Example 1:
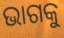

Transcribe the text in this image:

ଭାଗକୁ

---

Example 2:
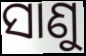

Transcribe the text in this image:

ସାଣୁ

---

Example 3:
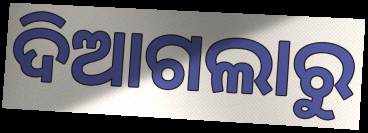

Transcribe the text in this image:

ଦିଆଗଲାରୁ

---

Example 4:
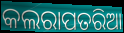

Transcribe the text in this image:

କଲରାପତରିଆ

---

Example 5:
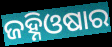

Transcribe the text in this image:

ଜହ୍ନିଓଷାର